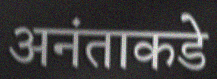
अनंताकडे